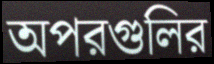
অপরগুলির